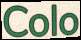
Colo